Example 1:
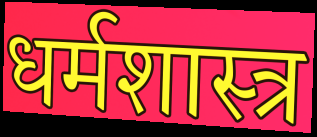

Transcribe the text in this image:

धर्मशास्त्र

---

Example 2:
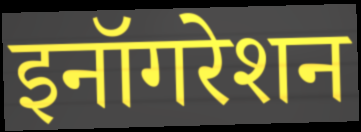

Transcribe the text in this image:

इनॉगरेशन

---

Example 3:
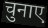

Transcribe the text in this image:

चुनाए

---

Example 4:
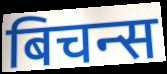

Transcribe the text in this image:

बिचन्स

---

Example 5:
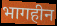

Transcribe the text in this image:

भागहीन